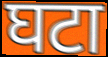
घटा